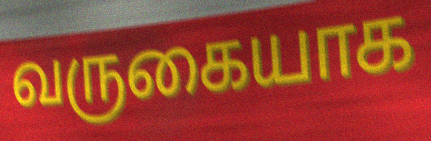
வருகையாக